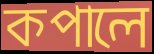
কপালে